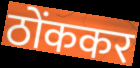
ठोंककर